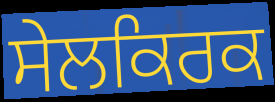
ਸੇਲਕਿਰਕ